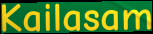
Kailasam